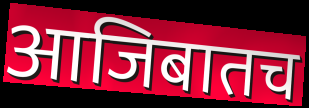
आजिबातच